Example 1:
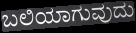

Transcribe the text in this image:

ಬಲಿಯಾಗುವುದು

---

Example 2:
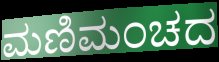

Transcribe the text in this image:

ಮಣಿಮಂಚದ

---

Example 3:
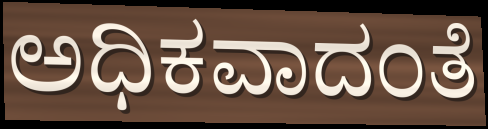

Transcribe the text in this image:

ಅಧಿಕವಾದಂತೆ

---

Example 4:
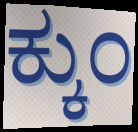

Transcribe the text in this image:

ಕ್ಕುಂ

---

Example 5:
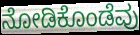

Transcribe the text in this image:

ನೋಡಿಕೊಂಡೆವು